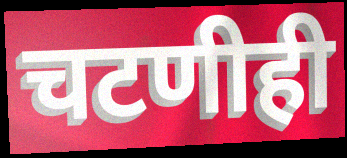
चटणीही